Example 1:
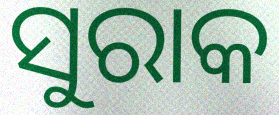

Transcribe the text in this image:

ସୁରାକ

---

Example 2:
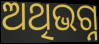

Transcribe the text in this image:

ଅଥିଭଗ୍ନ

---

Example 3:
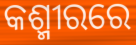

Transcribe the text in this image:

କଶ୍ମୀରରେ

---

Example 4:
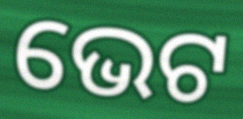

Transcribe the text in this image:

ଭେଟ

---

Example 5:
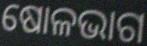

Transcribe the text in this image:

ଷୋଳଭାଗ